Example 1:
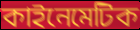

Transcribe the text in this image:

কাইনেমেটিক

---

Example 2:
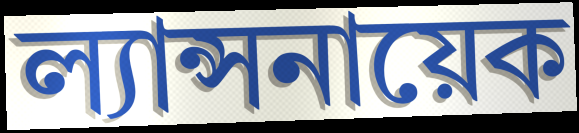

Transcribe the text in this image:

ল্যান্সনায়েক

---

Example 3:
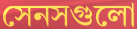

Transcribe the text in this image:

সেনসগুলো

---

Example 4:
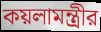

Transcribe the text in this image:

কয়লামন্ত্রীর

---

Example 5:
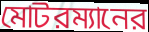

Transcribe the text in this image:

মোটরম্যানের